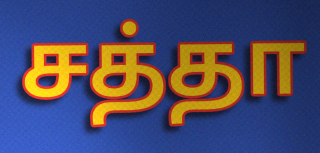
சத்தா